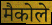
मैकोले